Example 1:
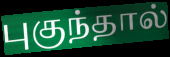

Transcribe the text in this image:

புகுந்தால்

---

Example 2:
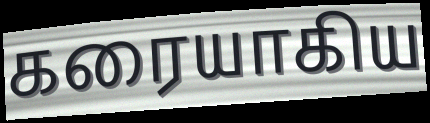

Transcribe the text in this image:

கரையாகிய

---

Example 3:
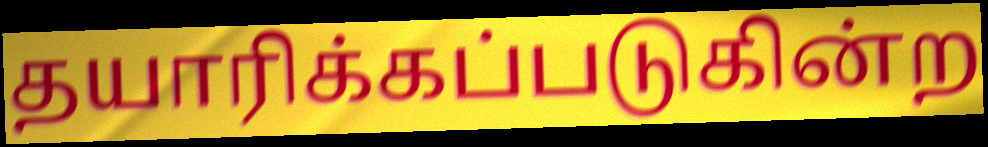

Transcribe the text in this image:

தயாரிக்கப்படுகின்ற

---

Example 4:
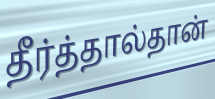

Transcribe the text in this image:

தீர்த்தால்தான்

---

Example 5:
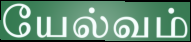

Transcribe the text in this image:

யேல்வம்